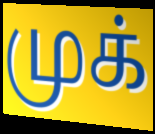
முக்